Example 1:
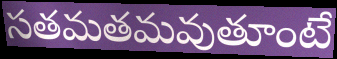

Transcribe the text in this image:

సతమతమవుతూంటే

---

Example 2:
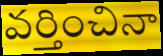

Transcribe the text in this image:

వర్తించినా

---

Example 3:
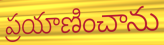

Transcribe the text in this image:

ప్రయాణించాను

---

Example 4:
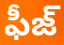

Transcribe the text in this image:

ఫీజ్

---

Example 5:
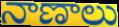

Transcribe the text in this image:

నాణాలు